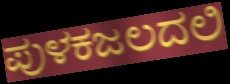
ಪುಳಕಜಲದಲಿ